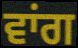
ਵਾਂਗ